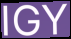
IGY